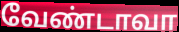
வேண்டாவா